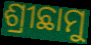
ଶ୍ରୀଛାମୁ